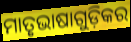
ମାତୃଭାଷାଗୁଡ଼ିକର